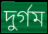
দুৰ্গম